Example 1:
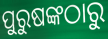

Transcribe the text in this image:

ପୁରୁଷଙ୍କଠାରୁ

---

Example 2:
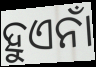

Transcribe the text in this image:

ହୁଏନାଁ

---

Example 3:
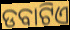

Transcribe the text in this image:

ଡବାଟିଏ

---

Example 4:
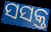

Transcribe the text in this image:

ସସକ୍ତ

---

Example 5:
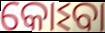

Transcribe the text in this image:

କୋଽବା